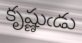
కృష్ణుఁడు